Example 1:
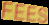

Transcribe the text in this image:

FEES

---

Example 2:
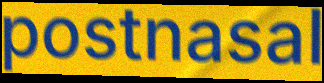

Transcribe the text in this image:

postnasal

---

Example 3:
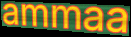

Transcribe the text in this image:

ammaa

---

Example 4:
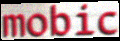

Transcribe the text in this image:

mobic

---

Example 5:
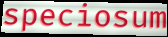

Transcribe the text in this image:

speciosum